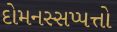
દોમનસ્સપ્પત્તો